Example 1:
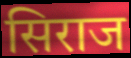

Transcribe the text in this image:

सिराज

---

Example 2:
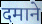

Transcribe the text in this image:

दमाने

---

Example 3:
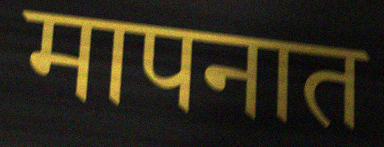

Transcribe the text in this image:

मापनात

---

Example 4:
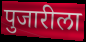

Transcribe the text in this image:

पुजारीला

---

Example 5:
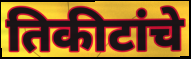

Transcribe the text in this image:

तिकीटांचे